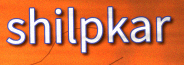
shilpkar